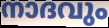
നാദവും